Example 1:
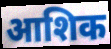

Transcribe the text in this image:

आशिक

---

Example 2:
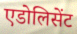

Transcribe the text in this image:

एडोलिसेंट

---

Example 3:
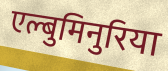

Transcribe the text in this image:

एल्बुमिनुरिया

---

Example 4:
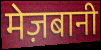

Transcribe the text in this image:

मेज़बानी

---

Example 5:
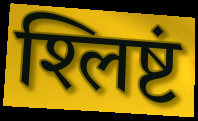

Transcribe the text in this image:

श्लिष्टं